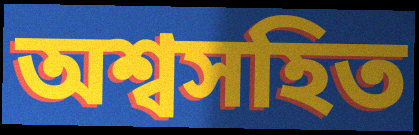
অশ্বসহিত